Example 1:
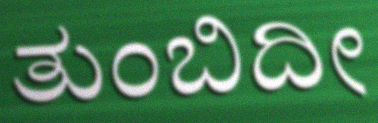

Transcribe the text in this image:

ತುಂಬಿದೀ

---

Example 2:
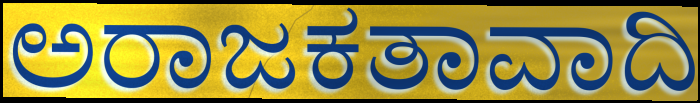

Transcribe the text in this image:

ಅರಾಜಕತಾವಾದಿ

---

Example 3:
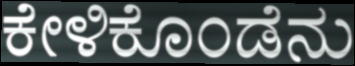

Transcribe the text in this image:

ಕೇಳಿಕೊಂಡೆನು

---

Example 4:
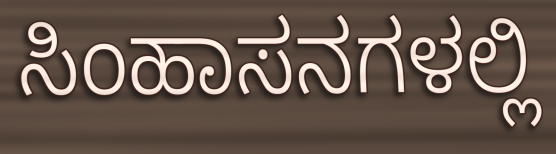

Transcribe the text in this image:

ಸಿಂಹಾಸನಗಳಲ್ಲಿ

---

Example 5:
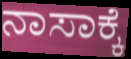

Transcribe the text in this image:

ನಾಸಾಕ್ಕೆ